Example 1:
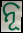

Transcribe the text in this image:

ନୂ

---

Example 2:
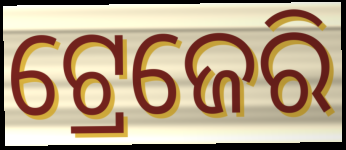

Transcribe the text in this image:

ଟ୍ରେଜେରି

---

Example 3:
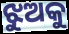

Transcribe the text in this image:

ଝୁଅକୁ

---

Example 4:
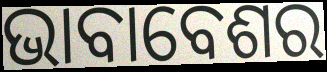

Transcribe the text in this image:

ଭାବାବେଶର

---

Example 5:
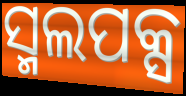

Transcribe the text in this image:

ସ୍ମଲପକ୍ସ